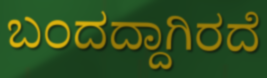
ಬಂದದ್ದಾಗಿರದೆ